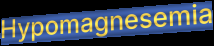
Hypomagnesemia